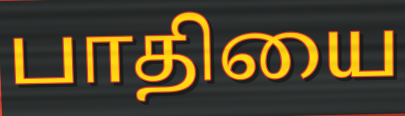
பாதியை